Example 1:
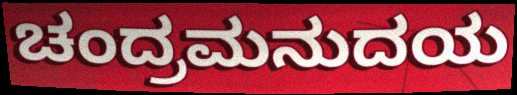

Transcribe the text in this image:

ಚಂದ್ರಮನುದಯ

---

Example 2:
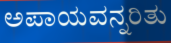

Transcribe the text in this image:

ಅಪಾಯವನ್ನರಿತು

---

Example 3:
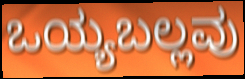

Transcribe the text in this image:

ಒಯ್ಯಬಲ್ಲವು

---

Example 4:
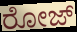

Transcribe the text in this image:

ರೋಜ್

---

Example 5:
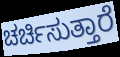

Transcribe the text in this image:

ಚರ್ಚಿಸುತ್ತಾರೆ